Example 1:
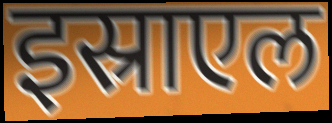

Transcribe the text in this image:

इस्राएल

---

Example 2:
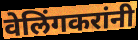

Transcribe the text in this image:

वेलिंगकरांनी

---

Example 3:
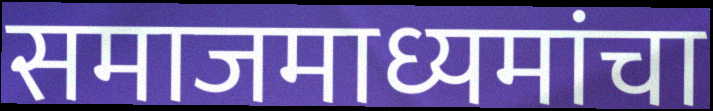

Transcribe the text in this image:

समाजमाध्यमांचा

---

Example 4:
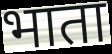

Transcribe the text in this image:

भाता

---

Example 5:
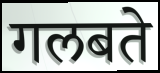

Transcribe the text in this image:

गलबते